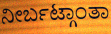
ನೀರ್ಬಟ್ಗಾಂತಾ